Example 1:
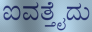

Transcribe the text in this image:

ಐವತ್ತೈದು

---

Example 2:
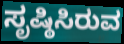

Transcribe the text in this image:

ಸೃಷ್ಠಿಸಿರುವ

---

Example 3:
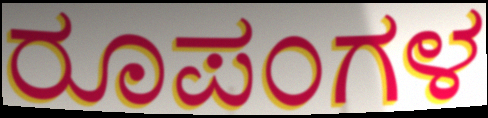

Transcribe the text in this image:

ರೂಪಂಗಳ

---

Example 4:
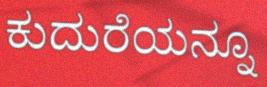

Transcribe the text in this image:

ಕುದುರೆಯನ್ನೂ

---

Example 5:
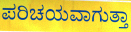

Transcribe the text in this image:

ಪರಿಚಯವಾಗುತ್ತಾ